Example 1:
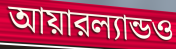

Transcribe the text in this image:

আয়ারল্যান্ডও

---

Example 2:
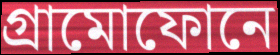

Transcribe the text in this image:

গ্রামোফোনে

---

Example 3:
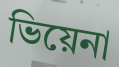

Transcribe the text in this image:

ভিয়েনা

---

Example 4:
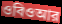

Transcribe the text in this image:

ওবিওআর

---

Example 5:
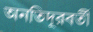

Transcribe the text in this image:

অনতিদূরবর্তী